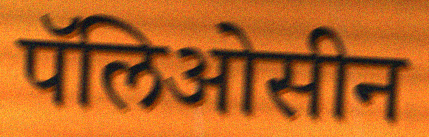
पॅलिओसीन